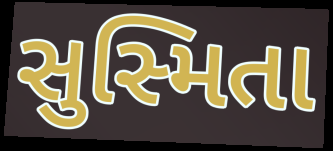
સુસ્મિતા